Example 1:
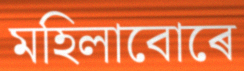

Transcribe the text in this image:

মহিলাবোৰে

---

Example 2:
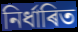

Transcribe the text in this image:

নিৰ্ধাৰিত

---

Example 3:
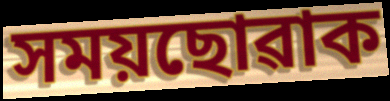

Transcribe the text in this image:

সময়ছোৱাক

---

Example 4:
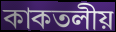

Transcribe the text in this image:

কাকতলীয়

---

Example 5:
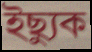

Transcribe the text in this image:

ইছ্যুক